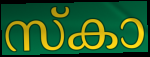
സ്കാ